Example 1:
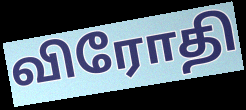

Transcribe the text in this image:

விரோதி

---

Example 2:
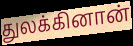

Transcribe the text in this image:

துலக்கினான்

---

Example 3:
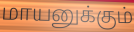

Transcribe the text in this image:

மாயனுக்கும்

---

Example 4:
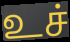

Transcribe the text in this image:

உச்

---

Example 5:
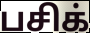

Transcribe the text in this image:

பசிக்